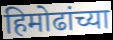
हिमोढांच्या